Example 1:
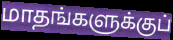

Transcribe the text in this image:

மாதங்களுக்குப்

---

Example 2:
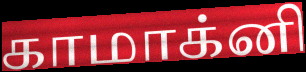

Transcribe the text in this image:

காமாக்னி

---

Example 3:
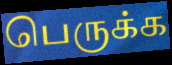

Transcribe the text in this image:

பெருக்க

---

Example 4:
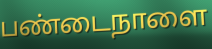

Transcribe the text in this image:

பண்டைநாளை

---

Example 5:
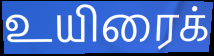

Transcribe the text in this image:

உயிரைக்